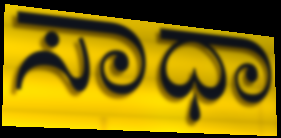
ಸಾಧಾ